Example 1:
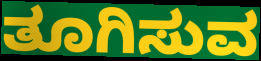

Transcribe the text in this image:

ತೂಗಿಸುವ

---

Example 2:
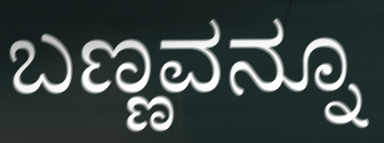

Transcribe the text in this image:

ಬಣ್ಣವನ್ನೂ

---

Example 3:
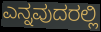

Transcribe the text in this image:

ಎನ್ನವುದರಲ್ಲಿ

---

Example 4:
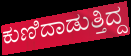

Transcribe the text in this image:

ಕುಣಿದಾಡುತ್ತಿದ್ದ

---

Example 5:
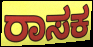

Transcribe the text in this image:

ರಾಸಕ